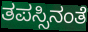
ತಪಸ್ಸಿನಂತೆ